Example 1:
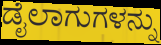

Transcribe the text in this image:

ಡೈಲಾಗುಗಳನ್ನು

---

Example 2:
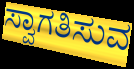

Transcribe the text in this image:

ಸ್ವಾಗತಿಸುವ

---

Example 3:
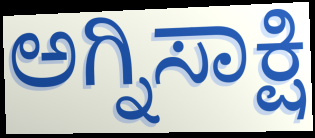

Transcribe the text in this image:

ಅಗ್ನಿಸಾಕ್ಷಿ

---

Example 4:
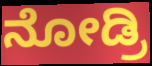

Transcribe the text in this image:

ನೋಡ್ರಿ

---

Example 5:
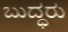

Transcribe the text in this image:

ಬುದ್ಧರು